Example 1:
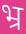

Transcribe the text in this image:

भ्र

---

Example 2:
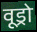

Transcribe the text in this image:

वूड्रो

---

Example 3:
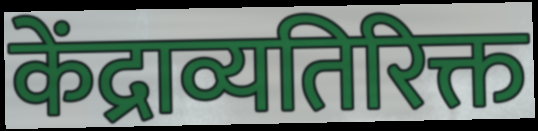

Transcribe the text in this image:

केंद्राव्यतिरिक्त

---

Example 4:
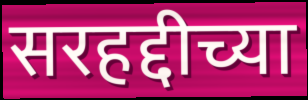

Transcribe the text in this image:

सरहद्दीच्या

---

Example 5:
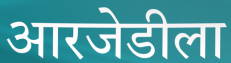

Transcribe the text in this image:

आरजेडीला